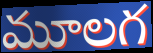
మూలగ